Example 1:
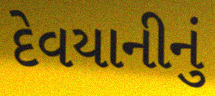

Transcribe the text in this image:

દેવયાનીનું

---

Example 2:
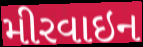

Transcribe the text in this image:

મીરવાઇન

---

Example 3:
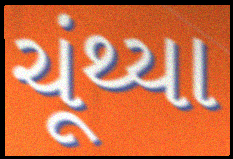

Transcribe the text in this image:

ચૂંથ્યા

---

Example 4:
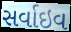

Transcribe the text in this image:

સર્વાઇવ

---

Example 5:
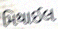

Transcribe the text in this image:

મિથાઈલ